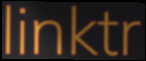
linktr